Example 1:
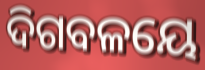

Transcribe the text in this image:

ଦିଗବଳୟେ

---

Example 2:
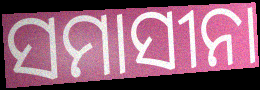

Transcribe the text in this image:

ସମାସୀନା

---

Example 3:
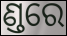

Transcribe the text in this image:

ଣ୍ଡରେ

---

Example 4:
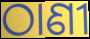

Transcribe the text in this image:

ଠାଣୀ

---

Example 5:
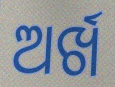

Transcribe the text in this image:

ଅର୍ଖ